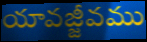
యావజ్జీవము